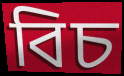
বিচ